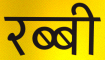
रब्बी